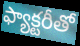
ఫ్యాక్టరీతో